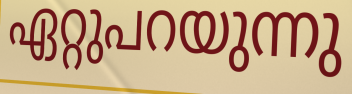
ഏറ്റുപറയുന്നു